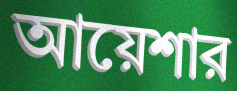
আয়েশার